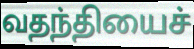
வதந்தியைச்